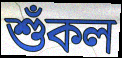
শুঁকল